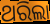
ଥରିଲା